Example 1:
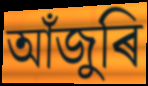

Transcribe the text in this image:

আঁজুৰি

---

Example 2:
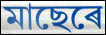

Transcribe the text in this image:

মাছেৰে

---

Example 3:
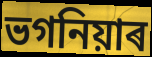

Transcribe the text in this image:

ভগনিয়াৰ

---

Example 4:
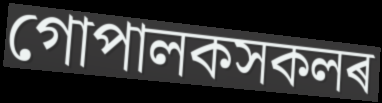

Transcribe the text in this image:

গোপালকসকলৰ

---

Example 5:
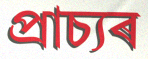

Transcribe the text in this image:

প্ৰাচ্যৰ